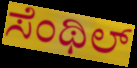
ಸೆಂಥಿಲ್